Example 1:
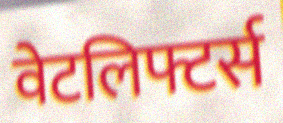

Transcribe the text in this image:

वेटलिफ्टर्स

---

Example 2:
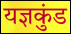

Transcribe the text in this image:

यज्ञकुंड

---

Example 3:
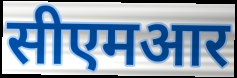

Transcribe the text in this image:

सीएमआर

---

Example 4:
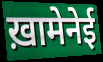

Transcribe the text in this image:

ख़ामेनेई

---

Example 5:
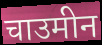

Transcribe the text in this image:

चाउमीन